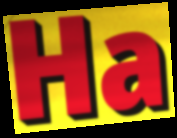
Ha